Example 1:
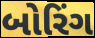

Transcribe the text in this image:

બોરિંગ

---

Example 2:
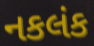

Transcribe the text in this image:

નકલંક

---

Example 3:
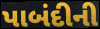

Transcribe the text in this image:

પાબંદીની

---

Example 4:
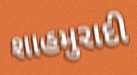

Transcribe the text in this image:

શાહમુરાદી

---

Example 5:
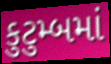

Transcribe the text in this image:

કુટુમ્બમાં